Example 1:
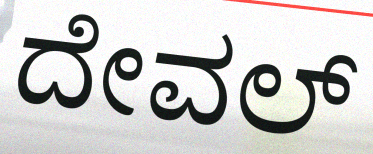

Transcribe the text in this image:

ದೇವಲ್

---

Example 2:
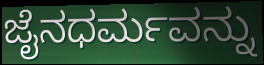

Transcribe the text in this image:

ಜೈನಧರ್ಮವನ್ನು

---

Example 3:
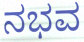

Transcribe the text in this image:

ನಭವ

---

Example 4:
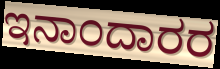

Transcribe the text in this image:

ಇನಾಂದಾರರ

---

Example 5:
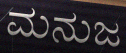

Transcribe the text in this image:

ಮನುಜ